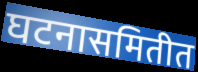
घटनासमितीत